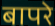
बापरे